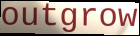
outgrow